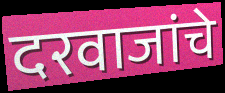
दरवाजांचे